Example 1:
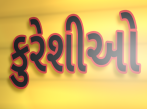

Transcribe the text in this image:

કુરેશીઓ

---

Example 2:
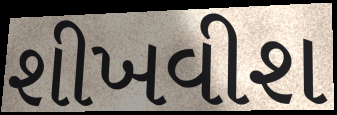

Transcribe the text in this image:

શીખવીશ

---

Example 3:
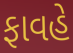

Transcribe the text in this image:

ફાવહે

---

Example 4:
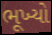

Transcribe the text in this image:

ભૂખ્યો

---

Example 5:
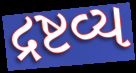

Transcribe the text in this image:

દ્રષ્ટવ્ય